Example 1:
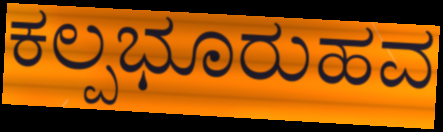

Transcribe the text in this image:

ಕಲ್ಪಭೂರುಹವ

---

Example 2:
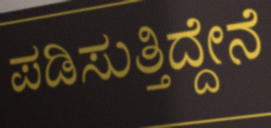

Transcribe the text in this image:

ಪಡಿಸುತ್ತಿದ್ದೇನೆ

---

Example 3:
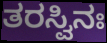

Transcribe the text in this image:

ತರಸ್ವಿನಃ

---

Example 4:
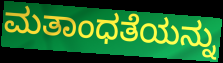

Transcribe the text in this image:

ಮತಾಂಧತೆಯನ್ನು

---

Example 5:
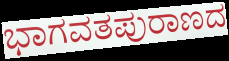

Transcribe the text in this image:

ಭಾಗವತಪುರಾಣದ